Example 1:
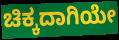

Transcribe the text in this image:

ಚಿಕ್ಕದಾಗಿಯೇ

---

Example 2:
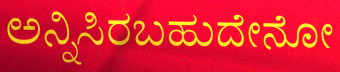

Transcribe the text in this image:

ಅನ್ನಿಸಿರಬಹುದೇನೋ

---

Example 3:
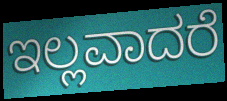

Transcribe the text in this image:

ಇಲ್ಲವಾದರೆ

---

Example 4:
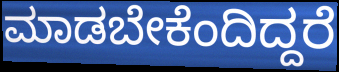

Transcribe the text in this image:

ಮಾಡಬೇಕೆಂದಿದ್ದರೆ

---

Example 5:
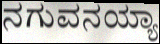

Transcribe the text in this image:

ನಗುವನಯ್ಯಾ